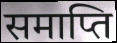
समाप्ति